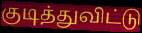
குடித்துவிட்டு